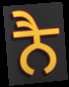
ਨੈ